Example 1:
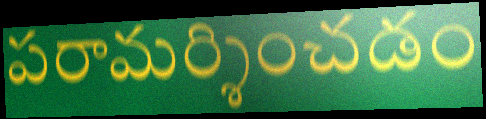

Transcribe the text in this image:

పరామర్శించడం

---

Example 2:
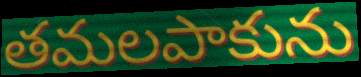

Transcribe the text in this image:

తమలపాకును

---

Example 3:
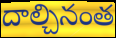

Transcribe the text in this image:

దాల్చినంత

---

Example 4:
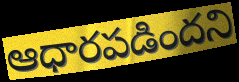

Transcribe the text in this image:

ఆధారపడిందని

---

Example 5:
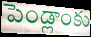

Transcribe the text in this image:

పెండ్లాంకు